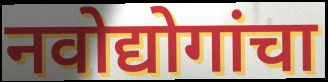
नवोद्योगांचा